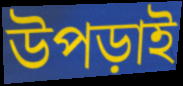
উপড়াই